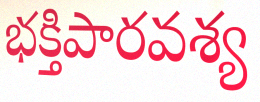
భక్తిపారవశ్య